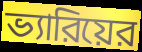
ভ্যারিয়ের